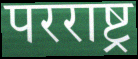
परराष्ट्र